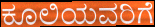
ಕೂಲಿಯವರಿಗೆ